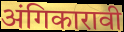
अंगिकारावी